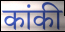
कांकी